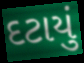
દટાયું